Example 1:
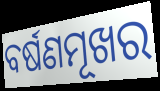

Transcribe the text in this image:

ବର୍ଷଣମୂଖର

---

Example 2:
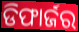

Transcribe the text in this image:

ଡିଫାର୍ଜର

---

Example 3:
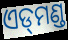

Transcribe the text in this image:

ଏଡ୍‌ମଣ୍ଡ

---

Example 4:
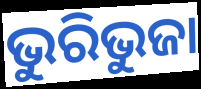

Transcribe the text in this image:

ଭୁରିଭୁଜା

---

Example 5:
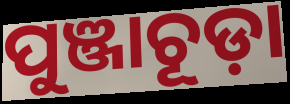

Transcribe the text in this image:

ପୁଞ୍ଜାଚୂଡ଼ା